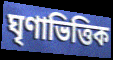
ঘৃণাভিত্তিক